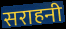
सराहनी